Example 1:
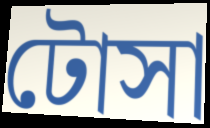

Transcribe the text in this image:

টোসা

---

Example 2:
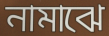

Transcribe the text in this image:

নামাঝে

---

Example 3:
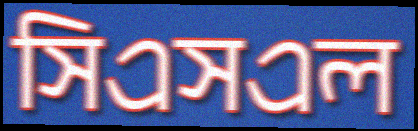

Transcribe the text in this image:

সিএসএল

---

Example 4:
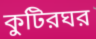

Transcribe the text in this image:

কুটিরঘর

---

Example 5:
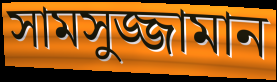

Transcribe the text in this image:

সামসুজ্জামান